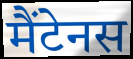
मैंटेनस